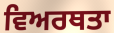
ਵਿਅਰਥਤਾ